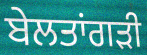
ਬੇਲਤਾਂਗੜੀ